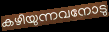
കഴിയുന്നവനോടു